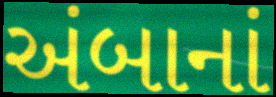
અંબાનાં